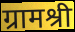
ग्रामश्री